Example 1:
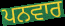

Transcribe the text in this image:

ਪਨਵਾਰ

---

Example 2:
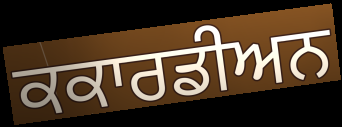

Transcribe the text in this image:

ਕਕਾਰਡੀਅਨ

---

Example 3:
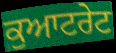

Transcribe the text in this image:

ਕੁਆਟਰੇਟ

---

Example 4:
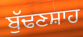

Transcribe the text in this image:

ਬੁੱਢਣਸ਼ਾਹ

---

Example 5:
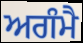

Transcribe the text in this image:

ਅਗੰਮੈ